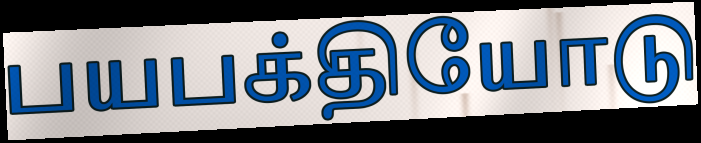
பயபக்தியோடு